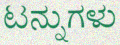
ಟನ್ನುಗಳು